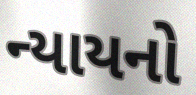
ન્યાયનો